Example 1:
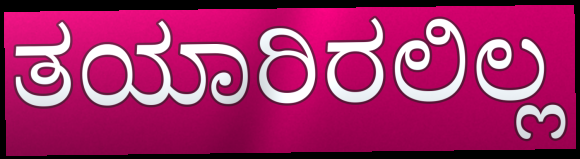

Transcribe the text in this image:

ತಯಾರಿರಲಿಲ್ಲ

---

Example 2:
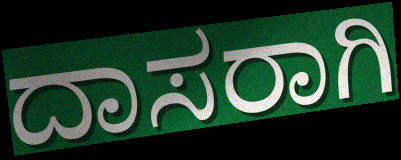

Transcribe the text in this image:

ದಾಸರಾಗಿ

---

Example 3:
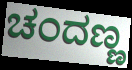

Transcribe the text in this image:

ಚಂದಣ್ಣ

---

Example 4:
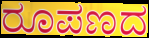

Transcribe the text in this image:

ರೂಪಣದ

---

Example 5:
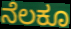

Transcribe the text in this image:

ನೆಲಕೂ